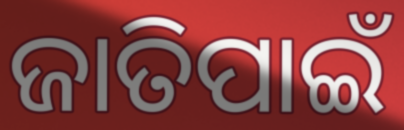
ଜାତିପାଇଁ